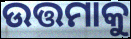
ଉତ୍ତମାକୁ